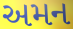
અમન